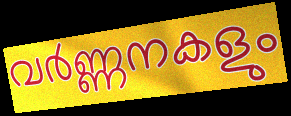
വർണ്ണനകളും